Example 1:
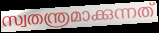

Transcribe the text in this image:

സ്വതന്ത്രമാക്കുന്നത്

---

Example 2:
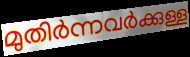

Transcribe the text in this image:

മുതിർന്നവർക്കുള്ള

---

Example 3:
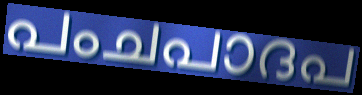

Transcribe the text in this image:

പംചപാദപ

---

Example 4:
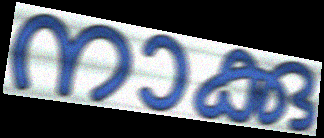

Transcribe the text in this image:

നാക്കു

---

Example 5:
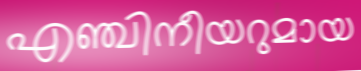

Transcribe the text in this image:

എഞ്ചിനീയറുമായ